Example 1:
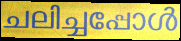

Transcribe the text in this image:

ചലിച്ചപ്പോൾ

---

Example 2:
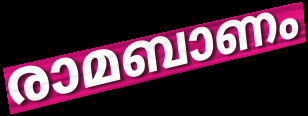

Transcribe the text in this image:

രാമബാണം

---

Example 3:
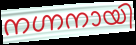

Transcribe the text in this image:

നഗ്നനായി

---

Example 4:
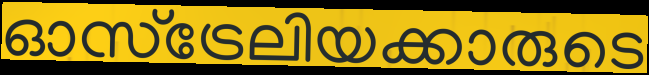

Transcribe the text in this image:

ഓസ്ട്രേലിയക്കാരുടെ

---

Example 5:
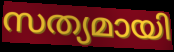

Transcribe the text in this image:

സത്യമായി